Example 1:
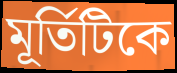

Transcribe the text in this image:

মূর্তিটিকে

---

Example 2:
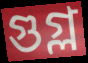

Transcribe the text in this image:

গুগ্ল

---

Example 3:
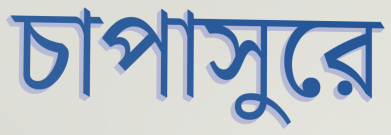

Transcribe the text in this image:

চাপাসুরে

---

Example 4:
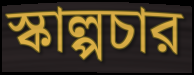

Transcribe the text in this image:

স্কাল্পচার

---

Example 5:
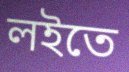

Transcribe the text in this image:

লইতে